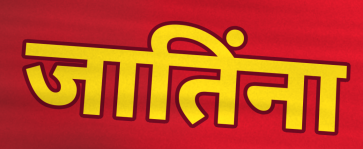
जातिंना